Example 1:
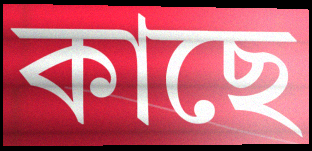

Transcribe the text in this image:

কাছে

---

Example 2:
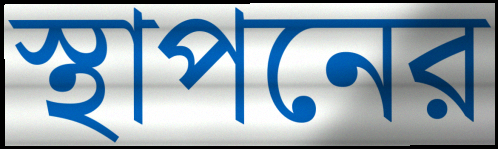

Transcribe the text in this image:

স্থাপনের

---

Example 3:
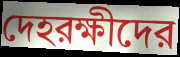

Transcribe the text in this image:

দেহরক্ষীদের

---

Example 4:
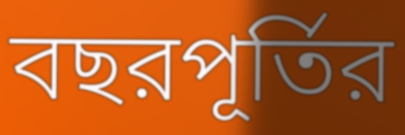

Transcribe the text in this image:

বছরপূর্তির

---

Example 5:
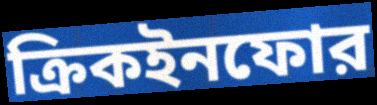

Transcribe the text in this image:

ক্রিকইনফোর